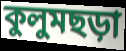
কুলুমছড়া